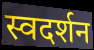
स्वदर्शन